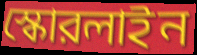
স্কোরলাইন